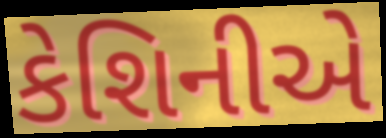
કેશિનીએ